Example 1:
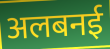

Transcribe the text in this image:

अलबनई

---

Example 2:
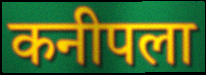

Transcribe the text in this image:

कनीपला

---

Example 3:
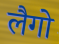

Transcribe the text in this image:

लैगो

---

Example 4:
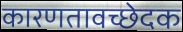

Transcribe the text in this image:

कारणतावच्छेदक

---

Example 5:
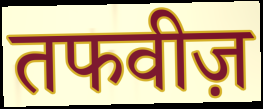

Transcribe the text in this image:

तफवीज़